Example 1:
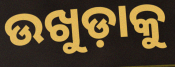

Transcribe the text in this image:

ଉଖୁଡ଼ାକୁ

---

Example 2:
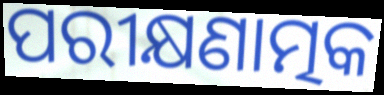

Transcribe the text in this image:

ପରୀକ୍ଷଣାତ୍ମକ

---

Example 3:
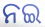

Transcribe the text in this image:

ନଇ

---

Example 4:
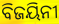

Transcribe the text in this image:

ବିଜୟିନୀ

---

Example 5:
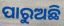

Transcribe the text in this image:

ପାରୁଅଛି